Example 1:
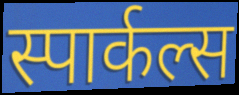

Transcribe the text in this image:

स्पार्कल्स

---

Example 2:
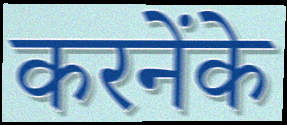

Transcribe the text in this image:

करनेंके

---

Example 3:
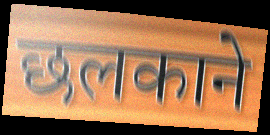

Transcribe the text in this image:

छलकाने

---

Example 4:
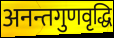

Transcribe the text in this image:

अनन्तगुणवृद्धि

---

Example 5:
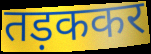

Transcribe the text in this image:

तड़ककर